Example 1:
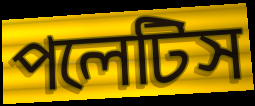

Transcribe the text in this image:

পলেটিস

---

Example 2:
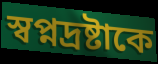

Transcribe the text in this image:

স্বপ্নদ্রষ্টাকে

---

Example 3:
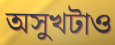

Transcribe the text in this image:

অসুখটাও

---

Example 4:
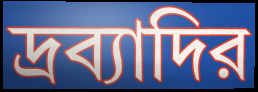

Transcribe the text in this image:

দ্রব্যাদির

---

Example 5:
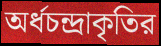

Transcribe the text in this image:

অর্ধচন্দ্রাকৃতির